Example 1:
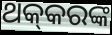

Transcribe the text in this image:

ଥକ୍‌କରଙ୍କ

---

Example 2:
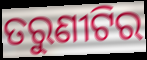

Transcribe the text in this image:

ତରୁଣୀଟିର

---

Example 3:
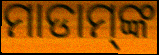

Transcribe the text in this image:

ମାଡାମ୍‌ଙ୍କ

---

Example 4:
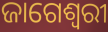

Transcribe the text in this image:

ଜାଗେଶ୍ୱରୀ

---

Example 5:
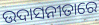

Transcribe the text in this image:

ଉଦାସନୀତାରେ